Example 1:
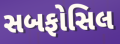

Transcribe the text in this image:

સબફોસિલ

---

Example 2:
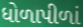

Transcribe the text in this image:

ધોળાપીળાં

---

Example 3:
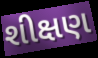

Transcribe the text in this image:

શીક્ષણ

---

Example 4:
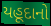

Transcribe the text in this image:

યહૂદાનો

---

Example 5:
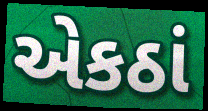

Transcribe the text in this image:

એકઠાં